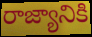
రాజ్యానికి